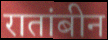
रातांबीन